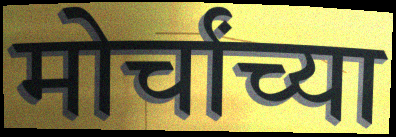
मोर्चांच्या